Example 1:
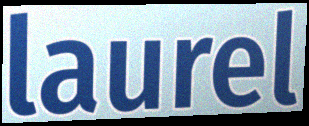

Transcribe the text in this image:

laurel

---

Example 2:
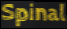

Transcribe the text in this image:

Spinal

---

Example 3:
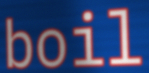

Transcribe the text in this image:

boil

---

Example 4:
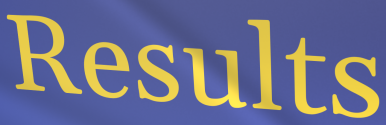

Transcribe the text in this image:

Results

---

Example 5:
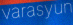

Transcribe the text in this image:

varasyun